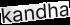
kandha